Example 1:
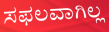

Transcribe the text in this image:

ಸಫಲವಾಗಿಲ್ಲ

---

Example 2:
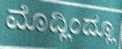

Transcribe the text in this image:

ಮೊದ್ಲಿಂದ್ಲೂ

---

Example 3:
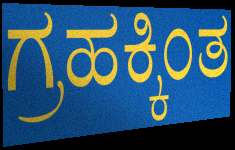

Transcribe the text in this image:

ಗ್ರಹಕ್ಕಿಂತ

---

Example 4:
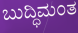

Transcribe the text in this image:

ಬುದ್ಧಿಮಂತ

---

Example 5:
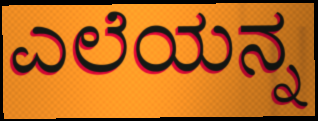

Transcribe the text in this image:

ಎಲೆಯನ್ನ